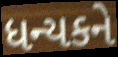
ધન્યકને